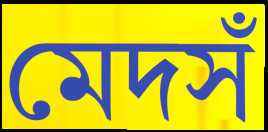
মেদসঁ